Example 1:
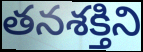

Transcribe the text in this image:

తనశక్తిని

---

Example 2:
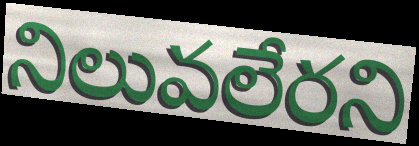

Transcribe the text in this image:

నిలువలేరని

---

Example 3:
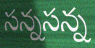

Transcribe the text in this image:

సన్నసన్న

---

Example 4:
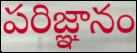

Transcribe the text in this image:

పరిజ్ఞానం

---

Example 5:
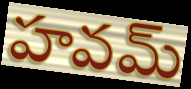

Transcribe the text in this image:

హవమ్